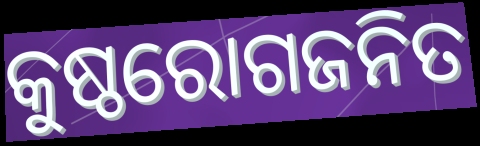
କୁଷ୍ଠରୋଗଜନିତ